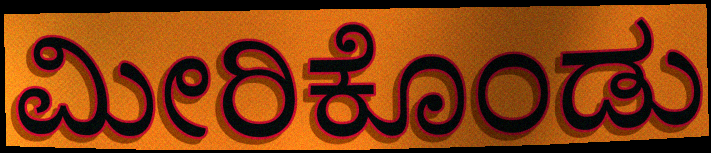
ಮೀರಿಕೊಂಡು